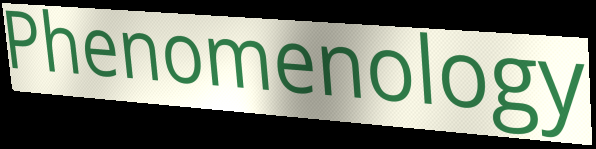
Phenomenology